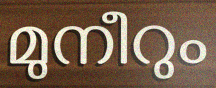
മുനീറും